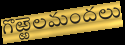
గొఱ్ఱెలమందలు